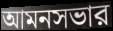
আমনসভার